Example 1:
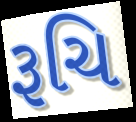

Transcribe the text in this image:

રૂચિ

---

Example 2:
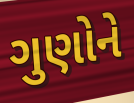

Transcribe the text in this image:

ગુણોને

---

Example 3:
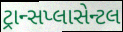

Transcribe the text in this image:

ટ્રાન્સપ્લાસેન્ટલ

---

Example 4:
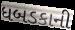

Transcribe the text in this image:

ધબડકાની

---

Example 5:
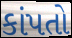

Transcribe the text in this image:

કાંપતો